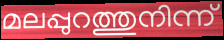
മലപ്പുറത്തുനിന്ന്